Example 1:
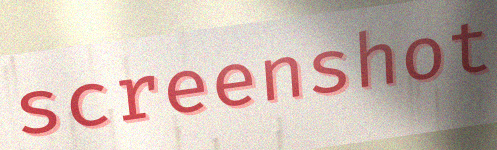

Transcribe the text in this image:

screenshot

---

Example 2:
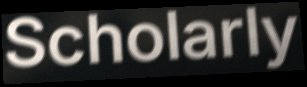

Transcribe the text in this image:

Scholarly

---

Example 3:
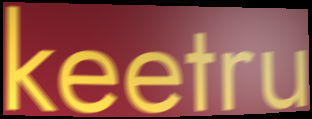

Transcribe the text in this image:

keetru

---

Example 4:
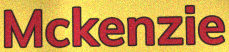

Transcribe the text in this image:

Mckenzie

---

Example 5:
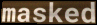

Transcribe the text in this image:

masked